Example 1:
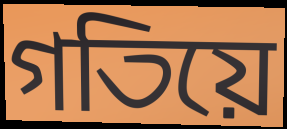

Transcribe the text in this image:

গতিয়ে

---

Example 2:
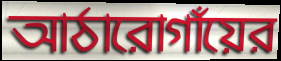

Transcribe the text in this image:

আঠারোগাঁয়ের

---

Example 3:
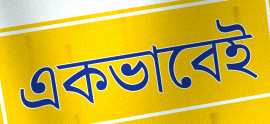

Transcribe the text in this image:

একভাবেই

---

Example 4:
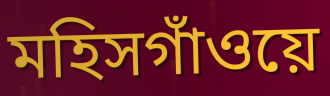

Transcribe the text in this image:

মহিসগাঁওয়ে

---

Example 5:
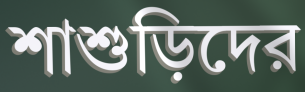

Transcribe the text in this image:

শাশুড়িদের